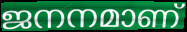
ജനനമാണ്